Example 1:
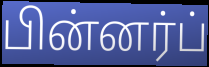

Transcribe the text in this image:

பின்னர்ப்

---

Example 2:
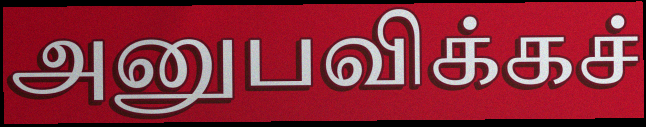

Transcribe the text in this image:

அனுபவிக்கச்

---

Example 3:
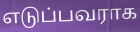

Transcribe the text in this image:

எடுப்பவராக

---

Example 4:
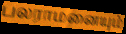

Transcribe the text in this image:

பலராமனையும்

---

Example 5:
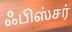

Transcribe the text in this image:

ஃபிஸ்சர்